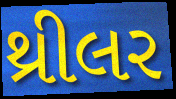
થ્રીલર